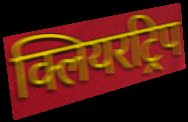
क्लियरट्रिप